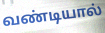
வண்டியால்